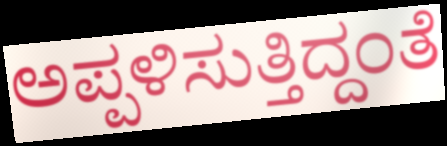
ಅಪ್ಪಳಿಸುತ್ತಿದ್ದಂತೆ